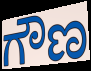
ಗೌಣ